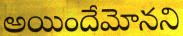
అయిందేమోనని